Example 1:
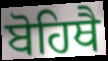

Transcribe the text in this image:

ਬੋਹਿਥੈ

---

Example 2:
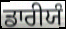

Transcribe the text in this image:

ਡਾਰੀਯੰ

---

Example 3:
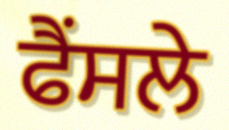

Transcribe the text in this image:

ਫੈਂਸਲੇ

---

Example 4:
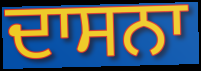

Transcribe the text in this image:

ਦਾਸਨਾ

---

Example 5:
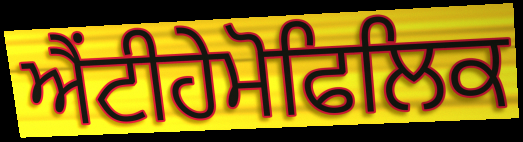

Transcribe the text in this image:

ਐਂਟੀਹੇਮੋਫਿਲਿਕ